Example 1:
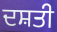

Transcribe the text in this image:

ਦਸ਼ਤੀ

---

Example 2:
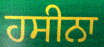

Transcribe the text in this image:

ਹਸੀਨਾ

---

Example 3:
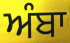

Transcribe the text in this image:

ਅੰਬਾ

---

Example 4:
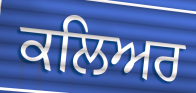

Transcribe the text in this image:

ਕਲਿਅਰ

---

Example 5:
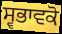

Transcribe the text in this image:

ਸ੍ਵਭਾਵਕੋ